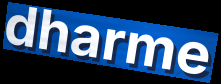
dharme